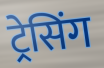
ट्रेसिंग